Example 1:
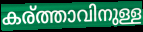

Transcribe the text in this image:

കര്ത്താവിനുള്ള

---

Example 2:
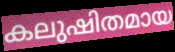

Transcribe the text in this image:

കലുഷിതമായ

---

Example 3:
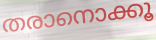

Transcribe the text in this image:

തരാനൊക്കൂ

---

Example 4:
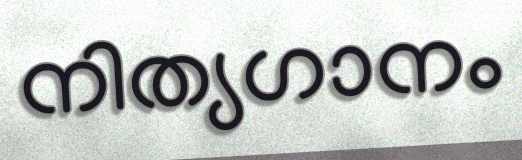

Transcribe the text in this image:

നിത്യഗാനം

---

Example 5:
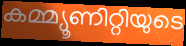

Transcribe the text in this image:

കമ്മ്യൂണിറ്റിയുടെ